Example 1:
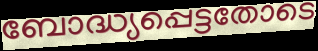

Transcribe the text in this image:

ബോദ്ധ്യപ്പെട്ടതോടെ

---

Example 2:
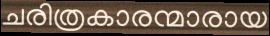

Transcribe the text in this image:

ചരിത്രകാരന്മാരായ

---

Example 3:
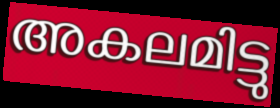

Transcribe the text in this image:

അകലമിട്ടു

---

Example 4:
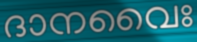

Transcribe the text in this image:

ദാനവൈഃ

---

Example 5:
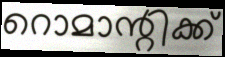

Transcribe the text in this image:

റൊമാന്റിക്ക്